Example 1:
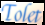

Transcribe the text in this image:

Tolet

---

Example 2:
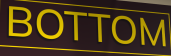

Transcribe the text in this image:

BOTTOM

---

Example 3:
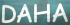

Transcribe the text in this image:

DAHA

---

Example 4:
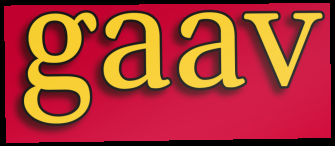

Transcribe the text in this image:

gaav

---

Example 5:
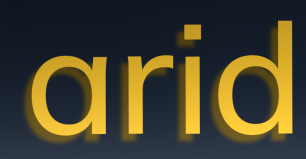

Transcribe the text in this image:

arid